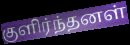
குளிர்ந்தனள்